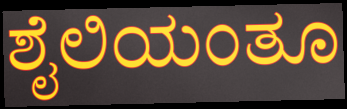
ಶೈಲಿಯಂತೂ